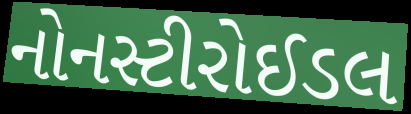
નોનસ્ટીરોઈડલ